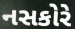
નસકોરે